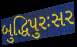
બુદ્ધિપુરઃસર